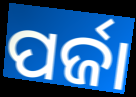
ପର୍ଜା